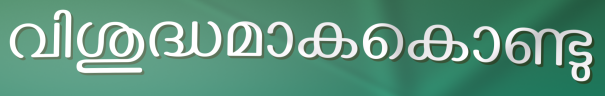
വിശുദ്ധമാകകൊണ്ടു